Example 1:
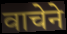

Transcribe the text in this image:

वाचेने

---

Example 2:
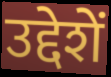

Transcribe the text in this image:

उद्देशें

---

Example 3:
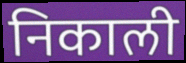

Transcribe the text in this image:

निकाली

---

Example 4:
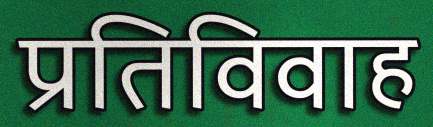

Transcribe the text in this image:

प्रतिविवाह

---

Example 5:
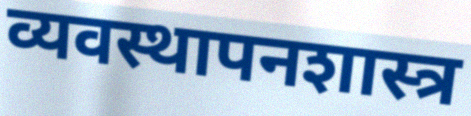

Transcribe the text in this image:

व्यवस्थापनशास्त्र